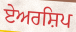
ਏਅਰਸ਼ਿਪ